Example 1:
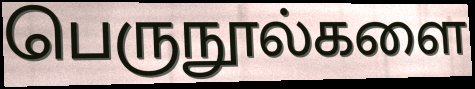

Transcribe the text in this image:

பெருநூல்களை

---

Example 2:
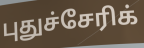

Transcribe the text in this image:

புதுச்சேரிக்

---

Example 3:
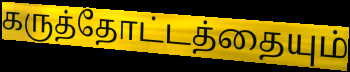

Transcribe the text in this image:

கருத்தோட்டத்தையும்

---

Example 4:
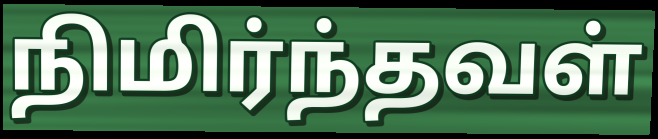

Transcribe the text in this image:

நிமிர்ந்தவள்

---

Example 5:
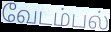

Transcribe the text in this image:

வேடம்பல்